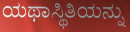
ಯಥಾಸ್ಥಿತಿಯನ್ನು